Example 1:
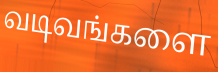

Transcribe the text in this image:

வடிவங்களை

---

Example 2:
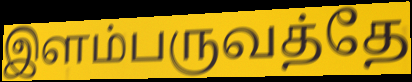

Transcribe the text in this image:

இளம்பருவத்தே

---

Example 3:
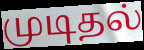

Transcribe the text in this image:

முடிதல்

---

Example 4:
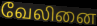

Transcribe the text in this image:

வேலினை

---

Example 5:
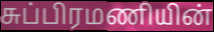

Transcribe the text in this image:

சுப்பிரமணியின்